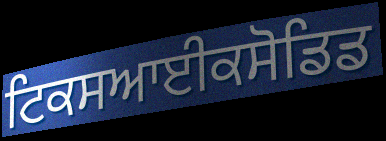
ਟਿਕਸਆਈਕਸੋਡਿਡ